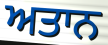
ਅਤਾਨ